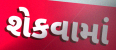
શેકવામાં